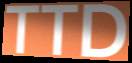
TTD